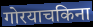
गोरयाचकिना